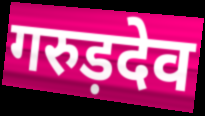
गरुड़देव